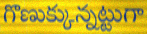
గొణుక్కున్నట్టుగా